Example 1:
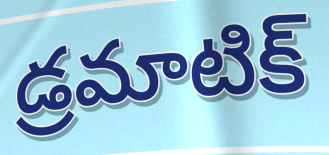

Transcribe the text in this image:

డ్రమాటిక్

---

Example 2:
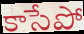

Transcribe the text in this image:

కాసేపో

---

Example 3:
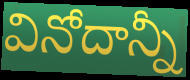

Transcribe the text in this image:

వినోదాన్నీ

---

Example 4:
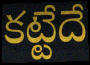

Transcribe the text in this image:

కట్టేదే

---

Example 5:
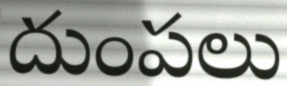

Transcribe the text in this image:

దుంపలు